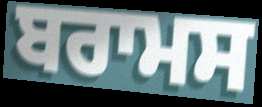
ਬਰਾਮਸ